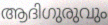
ആദിഗുരുവും